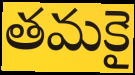
తమకై